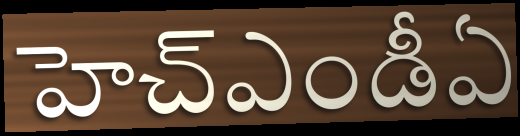
హెచ్ఎండీఏ